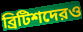
ব্রিটিশদেরও